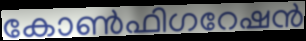
കോൺഫിഗറേഷൻ